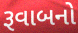
રૂવાબનો